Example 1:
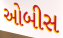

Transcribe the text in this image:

ઓબીસ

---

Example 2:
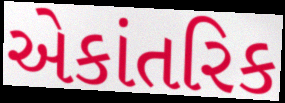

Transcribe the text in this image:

એકાંતરિક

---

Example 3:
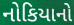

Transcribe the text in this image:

નોકિયાનો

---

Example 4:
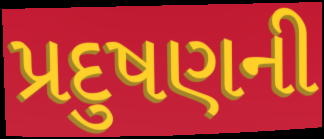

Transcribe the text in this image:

પ્રદુષણની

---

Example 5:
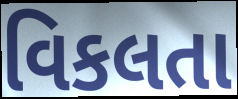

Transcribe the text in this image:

વિકલતા